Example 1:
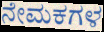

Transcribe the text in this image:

ನೇಮಕಗಳ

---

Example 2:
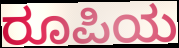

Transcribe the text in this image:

ರೂಪಿಯ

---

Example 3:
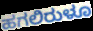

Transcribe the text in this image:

ಹಗಲಿರುಳೂ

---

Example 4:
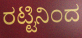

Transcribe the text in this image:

ರಟ್ಟಿನಿಂದ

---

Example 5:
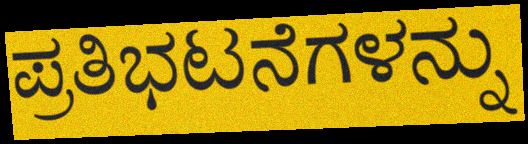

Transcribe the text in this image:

ಪ್ರತಿಭಟನೆಗಳನ್ನು